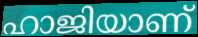
ഹാജിയാണ്